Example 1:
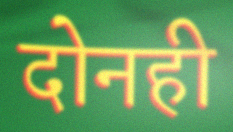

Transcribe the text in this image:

दोनही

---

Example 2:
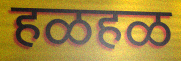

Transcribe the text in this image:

हळहळ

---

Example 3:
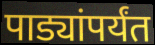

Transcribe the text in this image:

पाड्यांपर्यंत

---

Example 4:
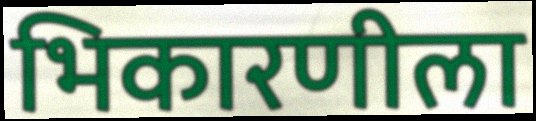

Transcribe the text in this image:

भिकारणीला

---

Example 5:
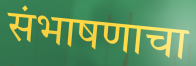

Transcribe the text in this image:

संभाषणाचा